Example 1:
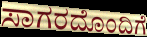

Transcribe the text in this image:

ಸಾಗರದೊಂದಿಗೆ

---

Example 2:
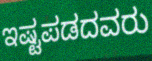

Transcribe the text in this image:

ಇಷ್ಟಪಡದವರು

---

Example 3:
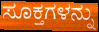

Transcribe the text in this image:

ಸೂಕ್ತಗಳನ್ನು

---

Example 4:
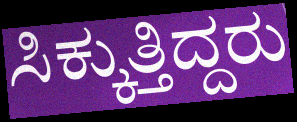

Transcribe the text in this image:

ಸಿಕ್ಕುತ್ತಿದ್ದರು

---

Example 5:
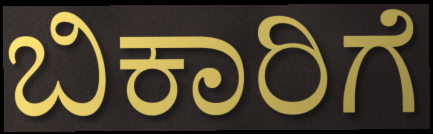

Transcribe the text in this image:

ಬಿಕಾರಿಗೆ